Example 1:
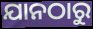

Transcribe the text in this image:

ଯାନଠାରୁ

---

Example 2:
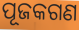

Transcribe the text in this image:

ପୂଜକଗଣ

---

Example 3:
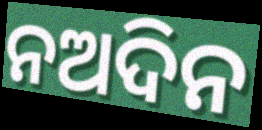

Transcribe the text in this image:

ନଅଦିନ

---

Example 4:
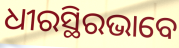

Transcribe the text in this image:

ଧୀରସ୍ଥିରଭାବେ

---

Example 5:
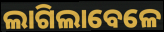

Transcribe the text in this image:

ଲାଗିଲାବେଳେ